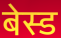
बेस्ड